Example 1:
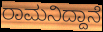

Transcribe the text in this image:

ರಾಮನಿದ್ದಾನೆ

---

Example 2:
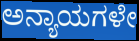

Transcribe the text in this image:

ಅನ್ಯಾಯಗಳೇ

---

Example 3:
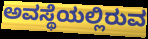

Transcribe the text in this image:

ಅವಸ್ಥೆಯಲ್ಲಿರುವ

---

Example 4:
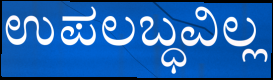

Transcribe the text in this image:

ಉಪಲಬ್ಧವಿಲ್ಲ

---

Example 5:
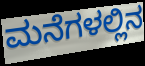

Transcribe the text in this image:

ಮನೆಗಳಲ್ಲಿನ